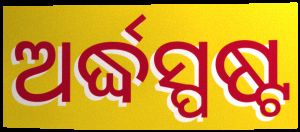
ଅର୍ଦ୍ଧସ୍ପଷ୍ଟ